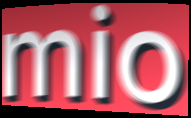
mio